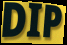
DIP